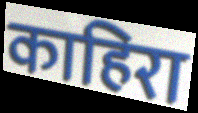
काहिरा